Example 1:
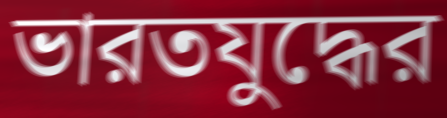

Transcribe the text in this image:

ভারতযুদ্ধের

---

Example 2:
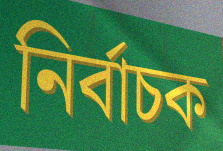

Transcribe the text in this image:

নির্বাচক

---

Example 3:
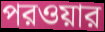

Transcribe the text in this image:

পরওয়ার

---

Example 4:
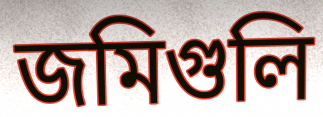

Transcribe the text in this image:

জমিগুলি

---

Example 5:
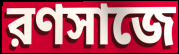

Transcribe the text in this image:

রণসাজে